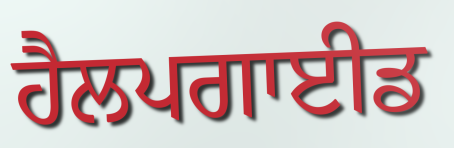
ਹੈਲਪਗਾਈਡ